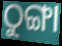
ଠୁଙ୍ଗା